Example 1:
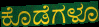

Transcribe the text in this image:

ಕೊಡೆಗಳೂ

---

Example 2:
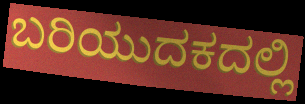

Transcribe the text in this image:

ಬರಿಯುದಕದಲ್ಲಿ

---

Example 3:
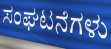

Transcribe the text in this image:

ಸಂಘಟನೆಗಳು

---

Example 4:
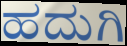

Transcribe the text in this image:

ಹದುಗಿ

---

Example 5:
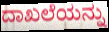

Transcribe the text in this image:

ದಾಖಲೆಯನ್ನು